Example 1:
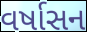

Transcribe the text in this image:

વર્ષાસન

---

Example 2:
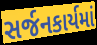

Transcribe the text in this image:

સર્જનકાર્યમાં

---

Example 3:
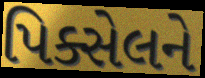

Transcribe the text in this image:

પિક્સેલને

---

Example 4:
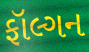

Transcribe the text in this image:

ફૉલ્ગન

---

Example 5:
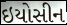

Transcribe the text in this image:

ઇયોસીન